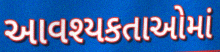
આવશ્યકતાઓમાં